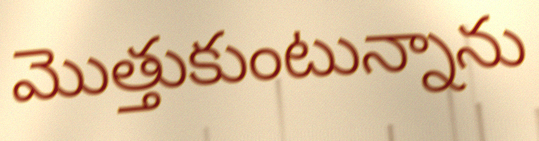
మొత్తుకుంటున్నాను